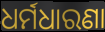
ଧର୍ମଧାରଣା